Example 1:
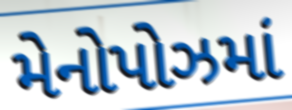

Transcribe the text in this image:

મેનોપોઝમાં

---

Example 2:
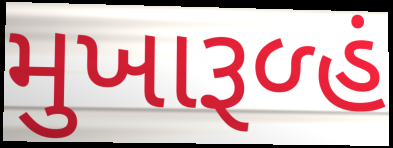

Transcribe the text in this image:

મુખારૂળ્હં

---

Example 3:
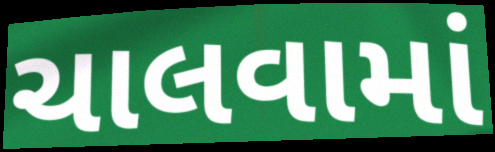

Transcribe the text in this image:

ચાલવામાં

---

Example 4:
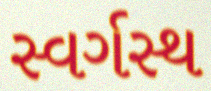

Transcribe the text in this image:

સ્વર્ગસ્થ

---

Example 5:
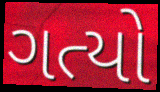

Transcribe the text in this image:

ગત્યો